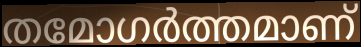
തമോഗർത്തമാണ്